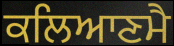
ਕਲਿਆਣਮੈ